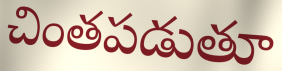
చింతపడుతూ